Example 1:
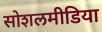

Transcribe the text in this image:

सोशलमीडिया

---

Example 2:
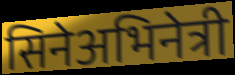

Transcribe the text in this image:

सिनेअभिनेत्री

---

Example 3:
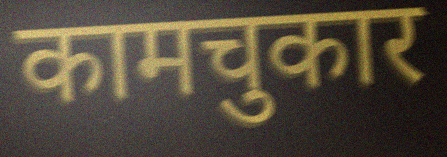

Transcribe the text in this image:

कामचुकार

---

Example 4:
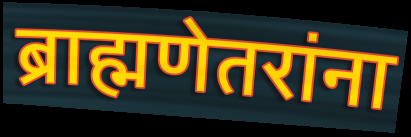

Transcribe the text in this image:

ब्राह्मणेतरांना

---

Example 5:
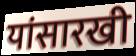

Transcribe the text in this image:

यांसारखी